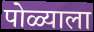
पोळ्याला